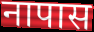
नापास